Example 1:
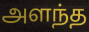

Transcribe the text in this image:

அளந்த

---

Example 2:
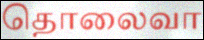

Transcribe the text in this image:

தொலைவா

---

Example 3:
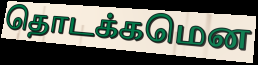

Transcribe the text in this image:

தொடக்கமென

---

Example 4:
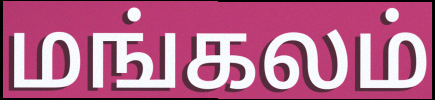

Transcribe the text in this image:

மங்கலம்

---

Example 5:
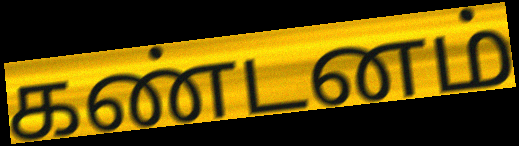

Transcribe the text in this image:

கண்டனம்